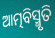
ଆତ୍ମବିସ୍ମୃତି